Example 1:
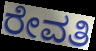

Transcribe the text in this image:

ರೇವತಿ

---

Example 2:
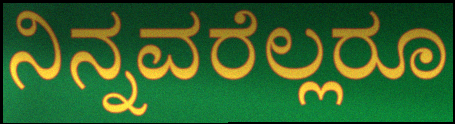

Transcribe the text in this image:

ನಿನ್ನವರೆಲ್ಲರೂ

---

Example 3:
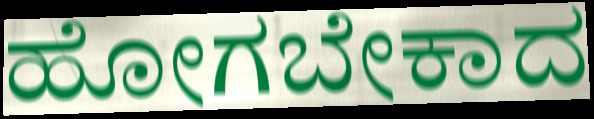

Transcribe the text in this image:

ಹೋಗಬೇಕಾದ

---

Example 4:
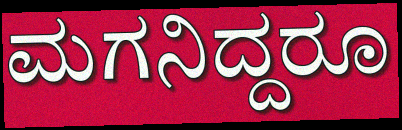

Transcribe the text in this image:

ಮಗನಿದ್ದರೂ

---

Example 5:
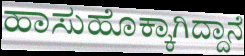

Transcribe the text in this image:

ಹಾಸುಹೊಕ್ಕಾಗಿದ್ದಾನೆ